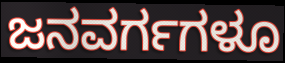
ಜನವರ್ಗಗಳೂ